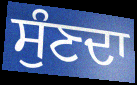
ਸੁੰਣਦਾ